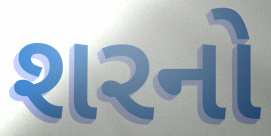
શરનો